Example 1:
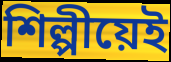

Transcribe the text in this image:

শিল্পীয়েই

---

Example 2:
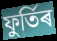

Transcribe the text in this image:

ফুৰ্তিৰ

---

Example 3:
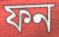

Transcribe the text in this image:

ফন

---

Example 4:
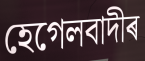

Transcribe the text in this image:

হেগেলবাদীৰ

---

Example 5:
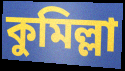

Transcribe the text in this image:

কুমিল্লা